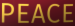
PEACE